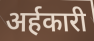
अर्हकारी